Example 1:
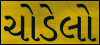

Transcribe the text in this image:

ચોડેલો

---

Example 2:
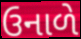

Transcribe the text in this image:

ઉનાળે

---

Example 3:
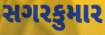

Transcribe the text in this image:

સગરકુમાર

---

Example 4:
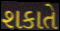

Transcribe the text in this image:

શકાતે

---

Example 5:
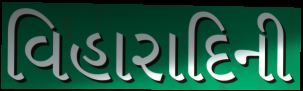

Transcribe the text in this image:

વિહારાદિની